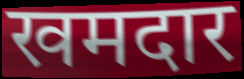
खमदार